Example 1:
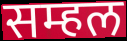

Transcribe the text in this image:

सम्हल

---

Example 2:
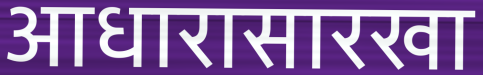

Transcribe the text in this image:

आधारासारखा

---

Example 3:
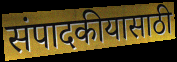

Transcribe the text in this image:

संपादकीयासाठी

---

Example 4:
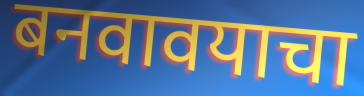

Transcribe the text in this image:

बनवावयाचा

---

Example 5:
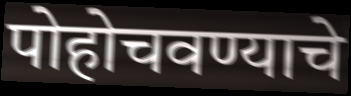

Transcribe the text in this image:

पोहोचवण्याचे